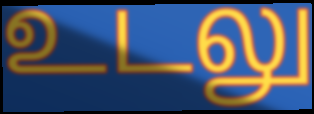
உடலு